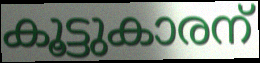
കൂട്ടുകാരന്